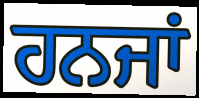
ਹਨਜਾਂ